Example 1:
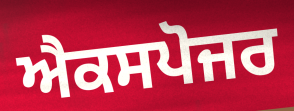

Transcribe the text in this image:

ਐਕਸਪੋਜਰ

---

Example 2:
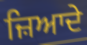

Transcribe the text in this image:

ਜ਼ਿਆਦੇ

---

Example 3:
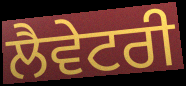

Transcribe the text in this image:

ਲੈਵੇਟਰੀ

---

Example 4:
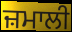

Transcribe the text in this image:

ਜ਼ਮਾਲੀ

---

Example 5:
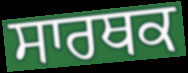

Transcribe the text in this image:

ਸਾਰਥਕ